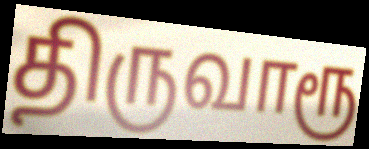
திருவாரூ